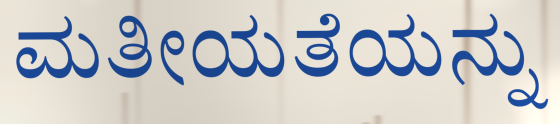
ಮತೀಯತೆಯನ್ನು